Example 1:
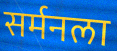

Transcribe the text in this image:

सर्मनला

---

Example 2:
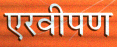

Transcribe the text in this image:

एरवीपण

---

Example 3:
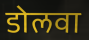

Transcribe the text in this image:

डोलवा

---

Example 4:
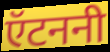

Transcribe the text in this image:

ऍटननी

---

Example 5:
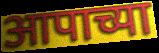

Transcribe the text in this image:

आपाच्या